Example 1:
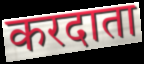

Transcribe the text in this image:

करदाता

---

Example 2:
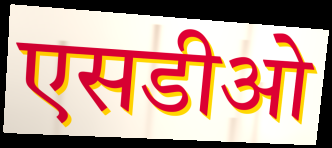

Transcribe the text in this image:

एसडीओ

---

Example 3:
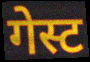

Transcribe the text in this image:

गेस्ट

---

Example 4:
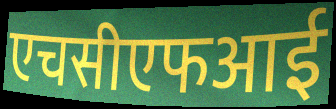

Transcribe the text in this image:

एचसीएफआई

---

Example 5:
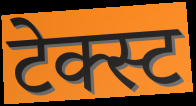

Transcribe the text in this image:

टेक्स्ट